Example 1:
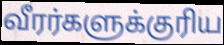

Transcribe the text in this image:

வீரர்களுக்குரிய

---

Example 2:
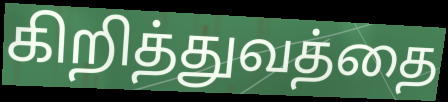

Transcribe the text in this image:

கிறித்துவத்தை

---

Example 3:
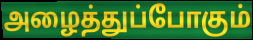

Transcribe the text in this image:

அழைத்துப்போகும்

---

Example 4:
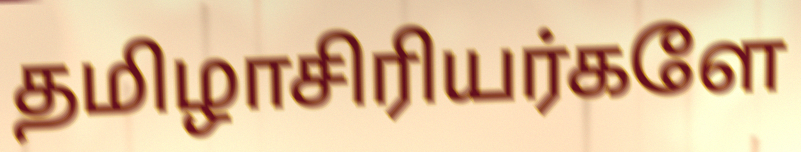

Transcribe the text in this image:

தமிழாசிரியர்களே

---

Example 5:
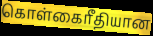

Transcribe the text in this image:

கொள்கைரீதியான